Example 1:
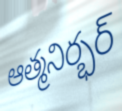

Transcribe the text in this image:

ఆత్మనిర్భర్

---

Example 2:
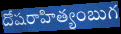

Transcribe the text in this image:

దోషరాహిత్యంబుగ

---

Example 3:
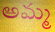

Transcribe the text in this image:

అమ్మ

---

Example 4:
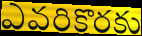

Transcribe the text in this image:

ఎవరికొరకు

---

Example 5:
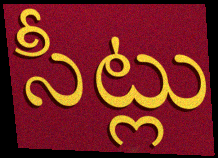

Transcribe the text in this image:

సీట్లు